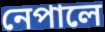
নেপালে